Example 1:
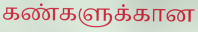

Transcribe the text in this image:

கண்களுக்கான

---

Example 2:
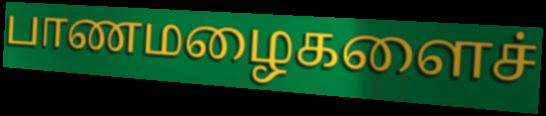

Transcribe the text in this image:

பாணமழைகளைச்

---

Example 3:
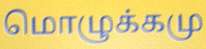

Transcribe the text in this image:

மொழுக்கமு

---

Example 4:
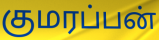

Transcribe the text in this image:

குமரப்பன்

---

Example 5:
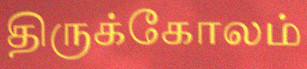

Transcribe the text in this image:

திருக்கோலம்